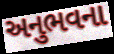
અનુભવના